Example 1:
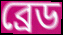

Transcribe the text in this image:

ব্ৰেড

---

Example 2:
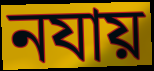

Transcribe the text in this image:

নযায়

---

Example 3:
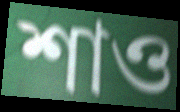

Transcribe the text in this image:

শাও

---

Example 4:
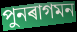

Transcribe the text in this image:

পুনৰাগমন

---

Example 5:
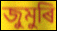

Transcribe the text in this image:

জুমুৰি